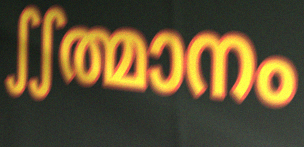
ഽഽത്മാനം